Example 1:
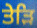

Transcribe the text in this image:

ਤੇੜਿ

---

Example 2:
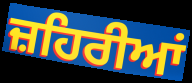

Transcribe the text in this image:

ਜ਼ਹਿਰੀਆਂ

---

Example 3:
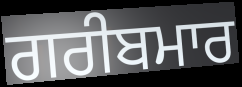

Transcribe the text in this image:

ਗਰੀਬਮਾਰ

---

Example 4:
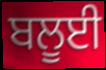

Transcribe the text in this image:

ਬਲੂਈ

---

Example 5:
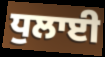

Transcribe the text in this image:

ਧੁਲਾਈ